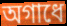
অগাধে